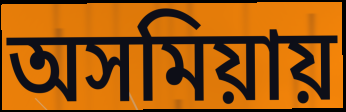
অসমিয়ায়